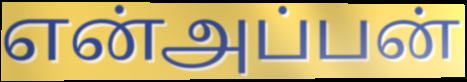
என்அப்பன்